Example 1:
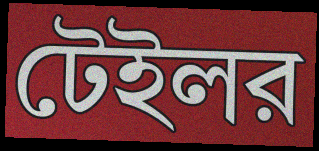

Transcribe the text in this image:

টেইলর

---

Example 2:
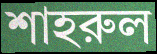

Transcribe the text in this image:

শাহরুল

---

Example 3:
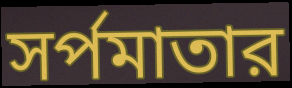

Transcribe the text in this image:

সর্পমাতার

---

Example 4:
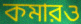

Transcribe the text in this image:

কমারও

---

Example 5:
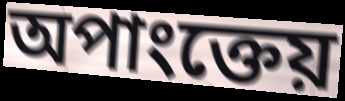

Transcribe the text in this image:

অপাংক্তেয়